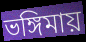
ভঙ্গিমায়